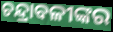
ଚନ୍ଦ୍ରାବଳୀଙ୍କର